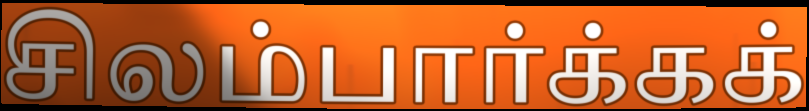
சிலம்பார்க்கக்